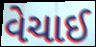
વેચાઈ